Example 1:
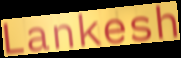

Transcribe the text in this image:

Lankesh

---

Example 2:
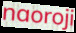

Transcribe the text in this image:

naoroji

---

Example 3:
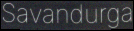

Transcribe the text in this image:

Savandurga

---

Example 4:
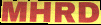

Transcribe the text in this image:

MHRD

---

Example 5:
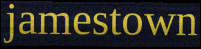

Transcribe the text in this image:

jamestown